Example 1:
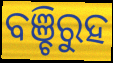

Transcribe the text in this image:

ବଞ୍ଚିରୁହ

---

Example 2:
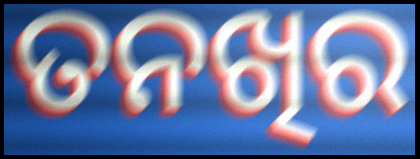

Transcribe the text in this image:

ତନଖିର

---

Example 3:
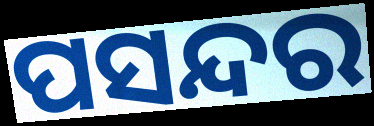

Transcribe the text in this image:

ପସନ୍ଦର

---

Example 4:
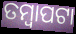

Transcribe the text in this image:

ତମ୍ବାପଟା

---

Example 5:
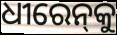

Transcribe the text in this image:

ଧୀରେନ୍‌କୁ